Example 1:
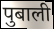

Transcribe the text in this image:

पुबाली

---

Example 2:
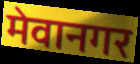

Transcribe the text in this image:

मेवानगर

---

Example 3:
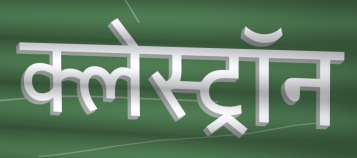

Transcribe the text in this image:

क्लेस्ट्रॉन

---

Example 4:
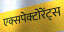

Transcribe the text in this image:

एक्सपेक्टोरेंट्स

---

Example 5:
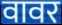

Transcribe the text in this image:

वावर